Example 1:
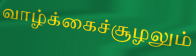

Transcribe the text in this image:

வாழ்க்கைச்சூழலும்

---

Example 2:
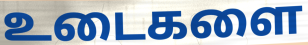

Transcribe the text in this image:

உடைகளை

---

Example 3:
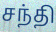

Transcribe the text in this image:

சந்தி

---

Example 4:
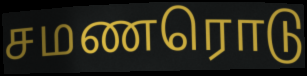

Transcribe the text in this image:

சமணரொடு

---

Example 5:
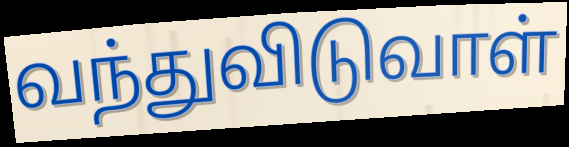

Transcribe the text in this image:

வந்துவிடுவாள்